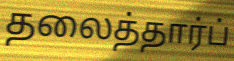
தலைத்தார்ப்